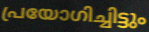
പ്രയോഗിച്ചിട്ടും